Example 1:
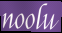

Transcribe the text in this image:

noolu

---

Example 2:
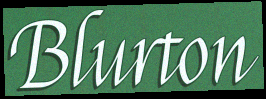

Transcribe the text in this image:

Blurton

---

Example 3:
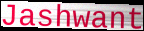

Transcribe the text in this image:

Jashwant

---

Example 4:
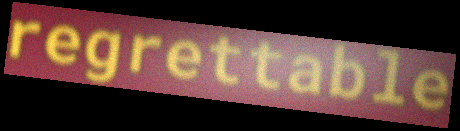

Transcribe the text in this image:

regrettable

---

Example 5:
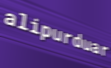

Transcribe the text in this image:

alipurduar